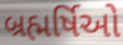
બ્રહ્મર્ષિઓ